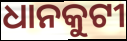
ଧାନକୁଟୀ